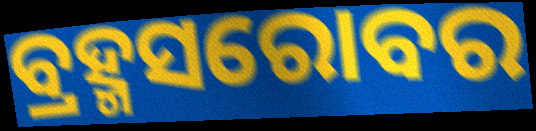
ବ୍ରହ୍ମସରୋବର